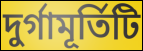
দুর্গামূর্তিটি